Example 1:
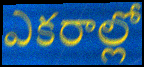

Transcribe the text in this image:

ఎకరాల్లో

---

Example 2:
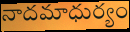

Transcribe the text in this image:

నాదమాధుర్యం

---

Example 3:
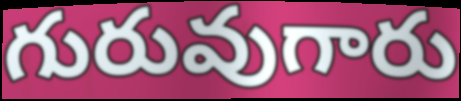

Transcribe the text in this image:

గురువుగారు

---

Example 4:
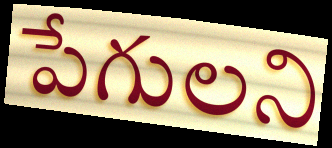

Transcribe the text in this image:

పేగులని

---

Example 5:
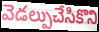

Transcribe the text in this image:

వెడల్పుచేసికొని